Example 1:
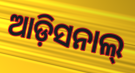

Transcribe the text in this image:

ଆଡ଼ିସନାଲ୍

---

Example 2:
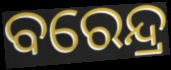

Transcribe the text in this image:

ବରେନ୍ଦ୍ର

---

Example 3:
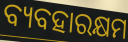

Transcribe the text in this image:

ବ୍ୟବହାରକ୍ଷମ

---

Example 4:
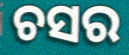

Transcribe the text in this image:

ଚସର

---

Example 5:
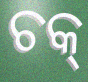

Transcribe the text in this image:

ଚକ୍